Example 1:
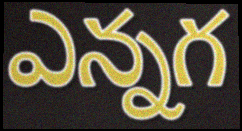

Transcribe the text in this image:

ఎన్నగ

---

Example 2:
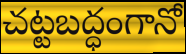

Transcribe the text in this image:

చట్టబద్ధంగానో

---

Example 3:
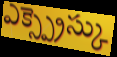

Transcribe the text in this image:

ఎక్స్ప్రెస్కు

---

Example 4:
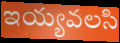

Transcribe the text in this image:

ఇయ్యవలసి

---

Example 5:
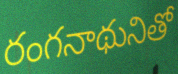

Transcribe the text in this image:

రంగనాథునితో